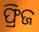
ଫ୍ରିଜ